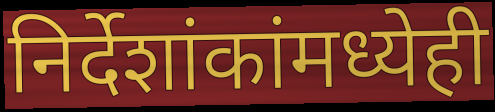
निर्देशांकांमध्येही